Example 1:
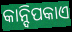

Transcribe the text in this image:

କାନ୍ଦିପକାଏ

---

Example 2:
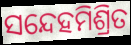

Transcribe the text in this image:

ସନ୍ଦେହମିଶ୍ରିତ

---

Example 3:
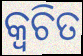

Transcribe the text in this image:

କ୍ବଚିତ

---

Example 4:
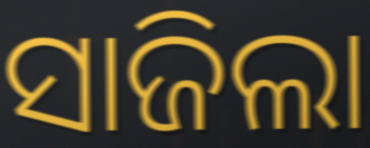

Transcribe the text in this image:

ସାଜିଲା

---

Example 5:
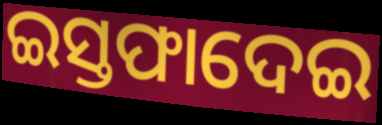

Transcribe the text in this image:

ଇସ୍ତଫାଦେଇ